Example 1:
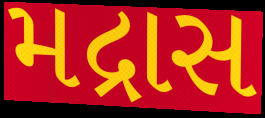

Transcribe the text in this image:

મદ્રાસ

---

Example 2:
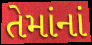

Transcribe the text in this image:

તેમાંનાં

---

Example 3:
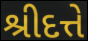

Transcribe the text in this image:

શ્રીદત્તે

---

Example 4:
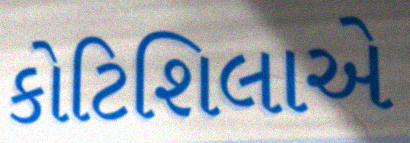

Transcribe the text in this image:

કોટિશિલાએ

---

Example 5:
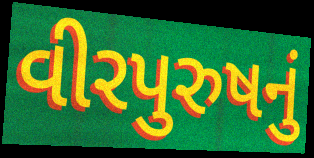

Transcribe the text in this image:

વીરપુરુષનું